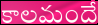
కాలమందే